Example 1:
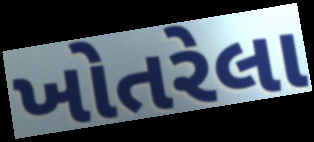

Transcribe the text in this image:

ખોતરેલા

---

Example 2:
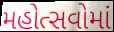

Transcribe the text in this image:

મહોત્સવોમાં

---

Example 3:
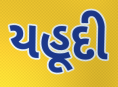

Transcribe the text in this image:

યહૂદી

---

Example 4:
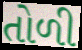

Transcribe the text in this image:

તોળી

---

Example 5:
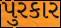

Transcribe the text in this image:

પુરકાર